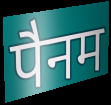
पैनम